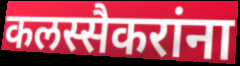
कलस्सैकरांना